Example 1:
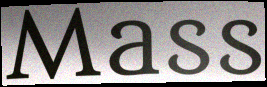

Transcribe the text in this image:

Mass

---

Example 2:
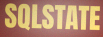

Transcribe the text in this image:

SQLSTATE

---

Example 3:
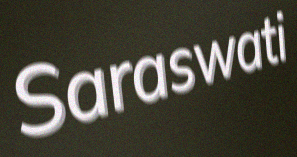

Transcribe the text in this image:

Saraswati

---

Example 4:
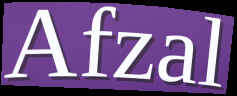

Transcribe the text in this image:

Afzal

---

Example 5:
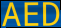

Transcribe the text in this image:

AED